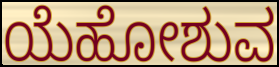
ಯೆಹೋಶುವ